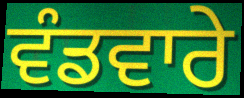
ਵੰਡਵਾਰੇ